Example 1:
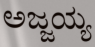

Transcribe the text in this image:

ಅಜ್ಜಯ್ಯ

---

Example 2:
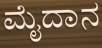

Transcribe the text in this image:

ಮೈದಾನ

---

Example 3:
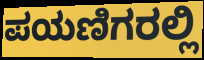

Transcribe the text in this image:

ಪಯಣಿಗರಲ್ಲಿ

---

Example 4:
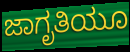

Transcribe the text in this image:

ಜಾಗೃತಿಯೂ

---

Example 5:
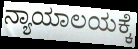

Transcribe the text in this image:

ನ್ಯಾಯಾಲಯಕ್ಕೆ